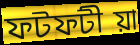
ফটফটীয়া